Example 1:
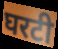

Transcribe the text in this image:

घरटी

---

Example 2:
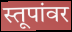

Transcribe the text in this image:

स्तूपांवर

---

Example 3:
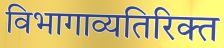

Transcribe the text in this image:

विभागाव्यतिरिक्त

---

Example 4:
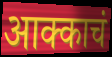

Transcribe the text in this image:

आक्काचं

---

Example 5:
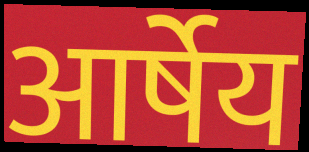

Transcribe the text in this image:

आर्षेय